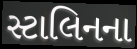
સ્ટાલિનના